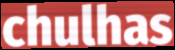
chulhas